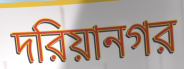
দরিয়ানগর